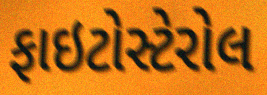
ફાઇટોસ્ટેરોલ